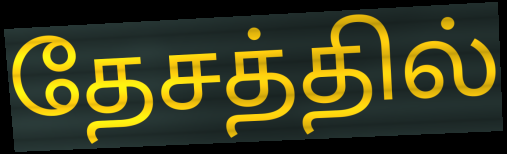
தேசத்தில்